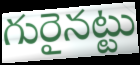
గురైనట్టు